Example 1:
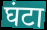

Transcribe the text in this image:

घंटा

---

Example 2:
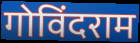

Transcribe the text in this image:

गोविंदराम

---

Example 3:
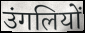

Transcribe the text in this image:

उंगलियों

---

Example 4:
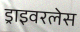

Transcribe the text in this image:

ड्राइवरलेस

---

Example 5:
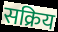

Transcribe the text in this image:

सक्रिय